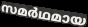
സമർഥമായ